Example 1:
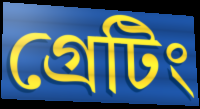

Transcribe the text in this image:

গ্রেটিং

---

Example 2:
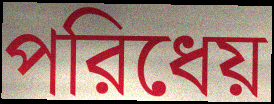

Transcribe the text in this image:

পরিধেয়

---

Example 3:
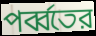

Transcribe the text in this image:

পর্ব্বতের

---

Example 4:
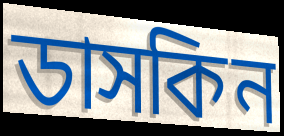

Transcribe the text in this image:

ডাসকিন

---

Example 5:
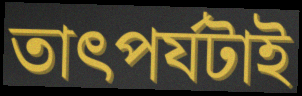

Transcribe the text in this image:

তাৎপর্যটাই